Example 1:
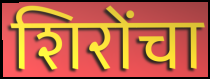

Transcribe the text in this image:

शिरोंचा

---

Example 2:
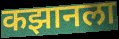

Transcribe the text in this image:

कझानला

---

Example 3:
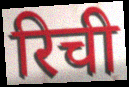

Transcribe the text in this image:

रिची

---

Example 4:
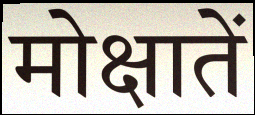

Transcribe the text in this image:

मोक्षातें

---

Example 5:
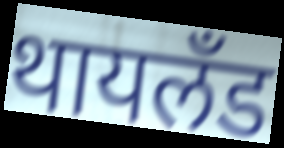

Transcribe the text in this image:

थायलँड